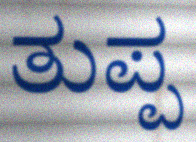
ತುಪ್ಪ